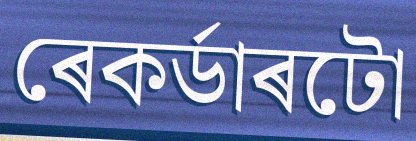
ৰেকৰ্ডাৰটো